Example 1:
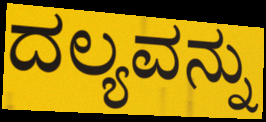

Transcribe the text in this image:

ದಲ್ಯವನ್ನು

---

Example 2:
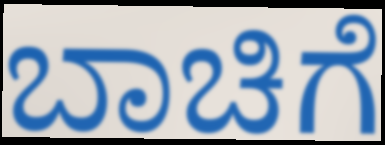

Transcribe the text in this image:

ಬಾಚಿಗೆ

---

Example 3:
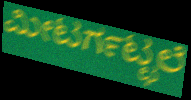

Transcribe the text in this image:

ಮೀಟರ್ಗಟ್ಟಲೆ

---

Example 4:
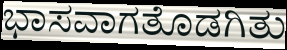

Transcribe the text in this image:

ಭಾಸವಾಗತೊಡಗಿತು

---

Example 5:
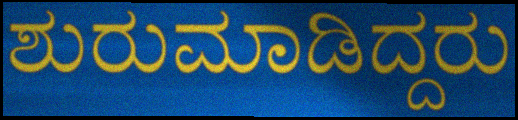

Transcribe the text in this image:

ಶುರುಮಾಡಿದ್ದರು